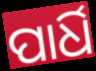
ପାର୍ଧି